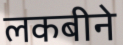
लकबीने